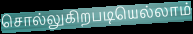
சொல்லுகிறபடியெல்லாம்